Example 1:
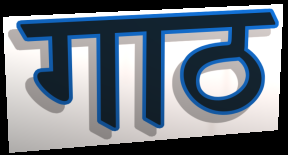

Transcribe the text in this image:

गाठ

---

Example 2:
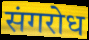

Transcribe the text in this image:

संगरोध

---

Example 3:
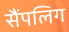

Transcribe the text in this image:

सैंपलिग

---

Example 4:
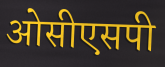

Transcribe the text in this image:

ओसीएसपी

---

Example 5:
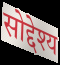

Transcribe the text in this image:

सोद्देश्य